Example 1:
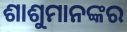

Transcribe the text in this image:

ଶାଶୁମାନଙ୍କର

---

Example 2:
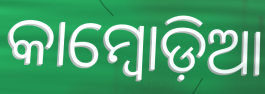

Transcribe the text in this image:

କାମ୍ବୋଡ଼ିଆ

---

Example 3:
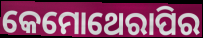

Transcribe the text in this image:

କେମୋଥେରାପିର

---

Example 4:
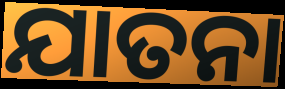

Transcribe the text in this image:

ଯାତନା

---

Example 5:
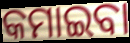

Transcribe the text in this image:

କମାଇବା